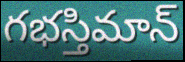
గభస్తిమాన్